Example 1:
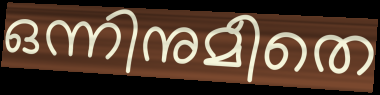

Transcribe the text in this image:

ഒന്നിനുമീതെ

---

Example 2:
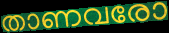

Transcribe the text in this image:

താണവരോ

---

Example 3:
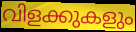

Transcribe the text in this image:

വിളക്കുകളും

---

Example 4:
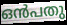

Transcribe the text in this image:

ഒൻപതു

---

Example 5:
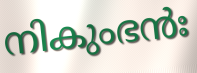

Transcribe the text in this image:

നികുംഭൻഃ